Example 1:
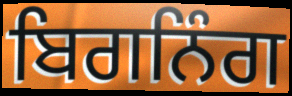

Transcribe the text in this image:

ਬਿਗਨਿੰਗ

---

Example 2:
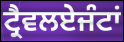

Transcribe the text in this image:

ਟ੍ਰੈਵਲਏਜੰਟਾਂ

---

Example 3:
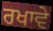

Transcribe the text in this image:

ਰਖਾਵੇ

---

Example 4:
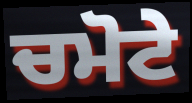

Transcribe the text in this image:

ਚਮੋਟੇ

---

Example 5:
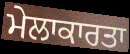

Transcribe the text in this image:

ਮੇਲਾਕਾਰਤਾ